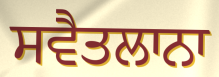
ਸਵੈਤਲਾਨਾ